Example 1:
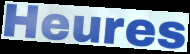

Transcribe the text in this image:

Heures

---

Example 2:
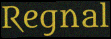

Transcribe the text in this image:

Regnal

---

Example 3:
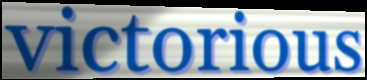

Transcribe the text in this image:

victorious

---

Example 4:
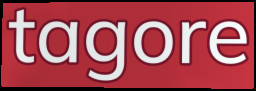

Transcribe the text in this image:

tagore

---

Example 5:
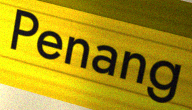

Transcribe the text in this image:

Penang